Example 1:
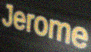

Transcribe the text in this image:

Jerome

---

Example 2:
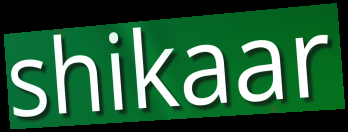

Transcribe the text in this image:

shikaar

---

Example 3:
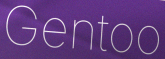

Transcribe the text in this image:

Gentoo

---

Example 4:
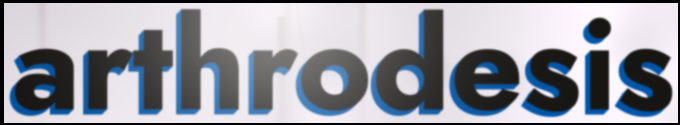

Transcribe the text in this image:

arthrodesis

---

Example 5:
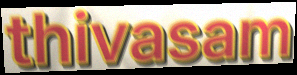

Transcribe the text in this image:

thivasam